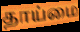
தாய்மை